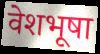
वेशभूषा